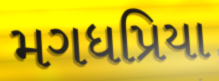
મગધપ્રિયા